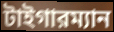
টাইগারম্যান